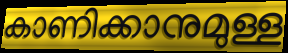
കാണിക്കാനുമുള്ള